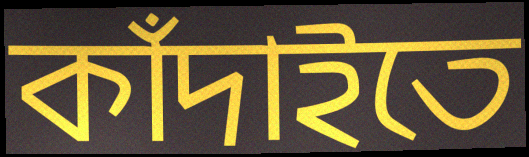
কাঁদাইতে